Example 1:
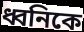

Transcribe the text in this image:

ধ্বনিকে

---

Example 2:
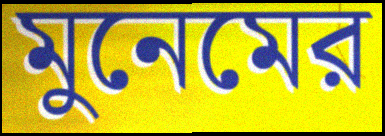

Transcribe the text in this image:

মুনেমের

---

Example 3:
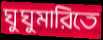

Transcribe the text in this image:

ঘুঘুমারিতে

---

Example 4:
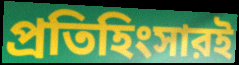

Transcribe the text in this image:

প্রতিহিংসারই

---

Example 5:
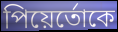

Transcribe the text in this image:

পিয়ের্তোকে